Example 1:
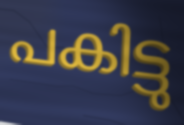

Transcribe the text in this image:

പകിട്ടു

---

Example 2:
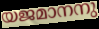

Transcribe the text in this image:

യജമാനനു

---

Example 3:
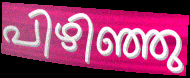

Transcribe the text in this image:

പിഴിഞ്ഞു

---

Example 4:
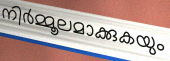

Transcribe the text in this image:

നിർമ്മൂലമാക്കുകയും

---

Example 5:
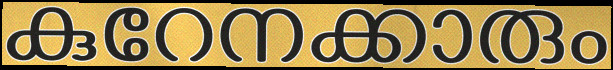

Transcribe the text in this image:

കുറേനക്കാരും